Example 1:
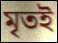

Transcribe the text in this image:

মৃতই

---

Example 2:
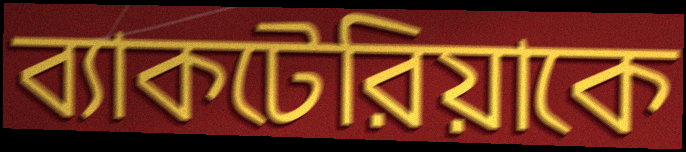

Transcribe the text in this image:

ব্যাকটেরিয়াকে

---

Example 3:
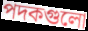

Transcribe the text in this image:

পদকগুলো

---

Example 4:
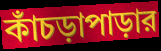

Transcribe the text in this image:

কাঁচড়াপাড়ার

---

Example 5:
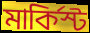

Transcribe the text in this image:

মার্কিস্ট